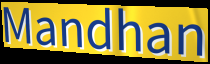
Mandhan